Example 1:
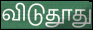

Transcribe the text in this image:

விடுதூது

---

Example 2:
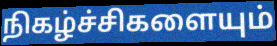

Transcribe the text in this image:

நிகழ்ச்சிகளையும்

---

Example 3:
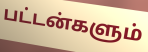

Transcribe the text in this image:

பட்டன்களும்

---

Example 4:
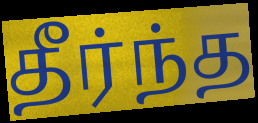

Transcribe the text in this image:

தீர்ந்த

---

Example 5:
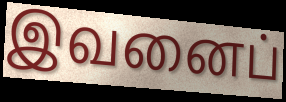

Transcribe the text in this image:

இவனைப்